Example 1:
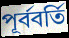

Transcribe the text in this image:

পূর্ববর্তি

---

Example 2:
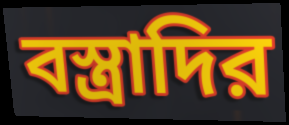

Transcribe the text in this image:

বস্ত্রাদির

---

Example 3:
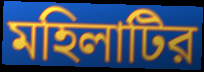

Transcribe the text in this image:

মহিলাটির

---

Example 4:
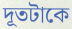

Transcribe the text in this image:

দূতটাকে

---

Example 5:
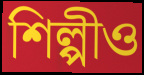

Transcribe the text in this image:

শিল্পীও